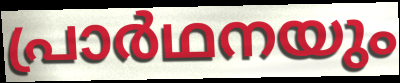
പ്രാർഥനയും